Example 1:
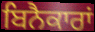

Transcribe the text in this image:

ਬਿਨੈਕਾਰਾਂ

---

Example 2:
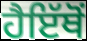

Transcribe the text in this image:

ਹੈਇੱਥੋਂ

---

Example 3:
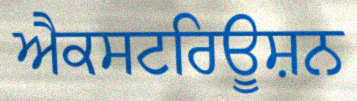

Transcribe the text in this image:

ਐਕਸਟਰਿਊਸ਼ਨ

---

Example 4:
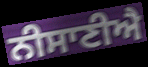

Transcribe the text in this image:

ਨੀਸਾਣੀਐ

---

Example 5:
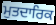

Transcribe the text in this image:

ਮੁਤਦਾਰਿਕ